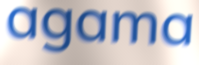
agama